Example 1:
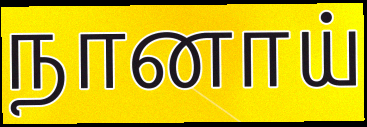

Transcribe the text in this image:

நானாய்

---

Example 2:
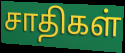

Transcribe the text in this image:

சாதிகள்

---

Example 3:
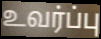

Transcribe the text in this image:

உவர்ப்பு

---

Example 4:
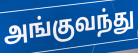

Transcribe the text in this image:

அங்குவந்து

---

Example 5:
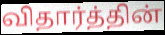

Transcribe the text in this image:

விதார்த்தின்